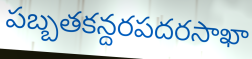
పబ్బతకన్దరపదరసాఖా